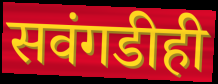
सवंगडीही